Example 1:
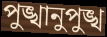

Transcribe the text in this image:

পুঙ্খানুপুঙ্খ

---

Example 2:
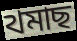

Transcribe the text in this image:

থমাছ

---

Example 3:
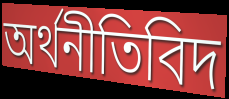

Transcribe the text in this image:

অৰ্থনীতিবিদ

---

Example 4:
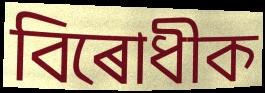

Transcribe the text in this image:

বিৰোধীক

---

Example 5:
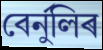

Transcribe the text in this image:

বেৰ্নুলিৰ